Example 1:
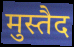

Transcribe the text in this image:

मुस्‍तैद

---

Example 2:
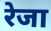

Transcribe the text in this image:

रेजा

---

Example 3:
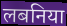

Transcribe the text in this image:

लबनिया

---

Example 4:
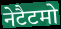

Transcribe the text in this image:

नेटैटमो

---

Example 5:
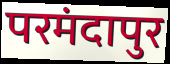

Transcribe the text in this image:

परमंदापुर